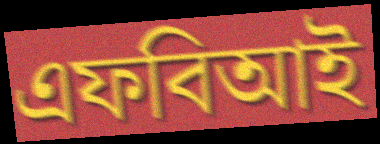
এফবিআই